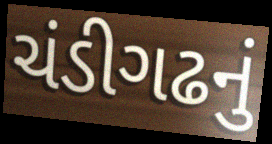
ચંડીગઢનું